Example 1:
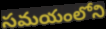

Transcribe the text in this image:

సమయంలోని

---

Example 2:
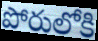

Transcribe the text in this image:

పోరులోకి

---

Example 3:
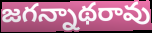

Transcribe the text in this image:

జగన్నాథరావు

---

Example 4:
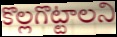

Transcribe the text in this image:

కొల్లగొట్టాలని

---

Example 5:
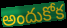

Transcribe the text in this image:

అందుకోక